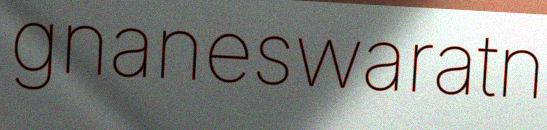
gnaneswaratn